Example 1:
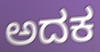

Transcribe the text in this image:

ಅದಕ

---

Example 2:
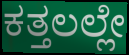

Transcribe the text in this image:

ಕತ್ತಲಲ್ಲೇ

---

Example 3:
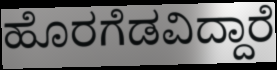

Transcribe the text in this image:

ಹೊರಗೆಡವಿದ್ದಾರೆ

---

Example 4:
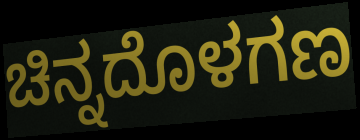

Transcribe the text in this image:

ಚಿನ್ನದೊಳಗಣ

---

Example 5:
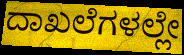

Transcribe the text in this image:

ದಾಖಲೆಗಳಲ್ಲೇ